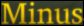
Minus